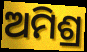
ଅମିଶ୍ର